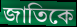
জাতিকে